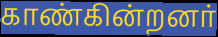
காண்கின்றனர்